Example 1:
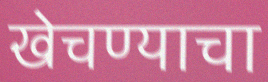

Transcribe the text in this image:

खेचण्याचा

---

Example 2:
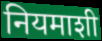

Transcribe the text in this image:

नियमाशी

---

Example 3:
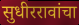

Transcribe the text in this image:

सुधीररावांचा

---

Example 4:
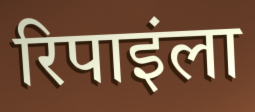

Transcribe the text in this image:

रिपाइंला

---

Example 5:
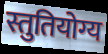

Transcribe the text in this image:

स्तुतियोग्य